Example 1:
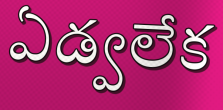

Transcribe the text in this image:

ఏడ్వలేక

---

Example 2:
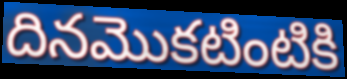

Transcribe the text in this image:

దినమొకటింటికి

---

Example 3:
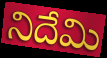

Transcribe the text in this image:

నిదేమి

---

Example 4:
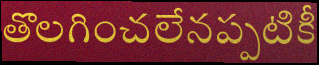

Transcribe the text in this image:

తొలగించలేనప్పటికీ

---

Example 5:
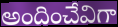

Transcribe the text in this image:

అందించేవిగా